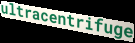
ultracentrifuge